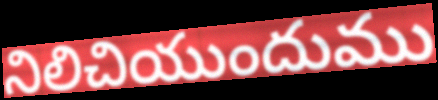
నిలిచియుందుము